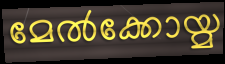
മേൽക്കോയ്മ